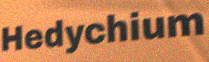
Hedychium